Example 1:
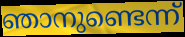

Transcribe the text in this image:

ഞാനുണ്ടെന്ന്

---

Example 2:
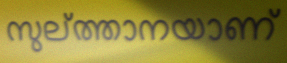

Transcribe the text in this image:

സുല്ത്താനയാണ്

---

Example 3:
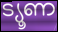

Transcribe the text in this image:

ട്യൂണ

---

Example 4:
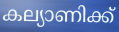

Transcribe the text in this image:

കല്യാണിക്ക്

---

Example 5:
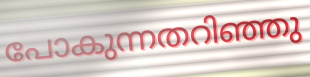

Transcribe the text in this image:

പോകുന്നതറിഞ്ഞു